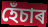
হেঁচাৰ